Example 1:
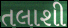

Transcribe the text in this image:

તલાશી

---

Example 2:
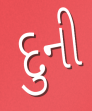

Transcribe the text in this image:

દુની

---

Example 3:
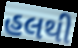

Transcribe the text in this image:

હલથી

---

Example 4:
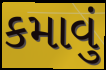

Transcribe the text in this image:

કમાવું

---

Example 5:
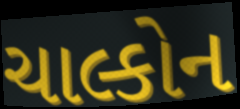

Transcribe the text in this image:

ચાલ્કોન